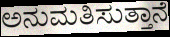
ಅನುಮತಿಸುತ್ತಾನೆ